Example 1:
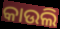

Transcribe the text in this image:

କାଉଲି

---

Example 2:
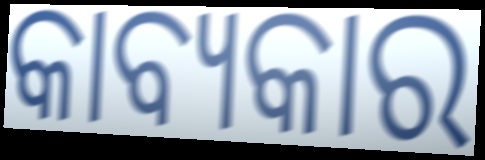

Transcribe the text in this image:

କାବ୍ୟକାର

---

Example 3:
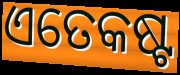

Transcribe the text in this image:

ଏତେକଷ୍ଟ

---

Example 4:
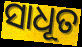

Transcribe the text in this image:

ସାଧୂତ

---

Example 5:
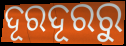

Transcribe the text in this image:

ଦୂରଦୂରରୁ